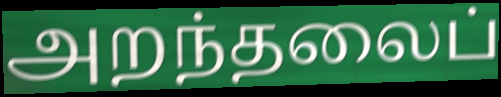
அறந்தலைப்